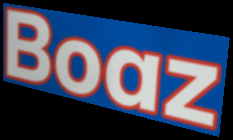
Boaz